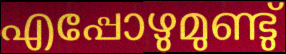
എപ്പോഴുമുണ്ടു്